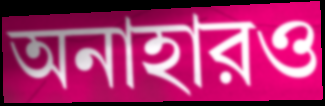
অনাহারও